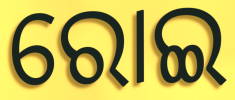
ରୋଇ